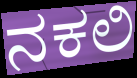
ನಕಲಿ